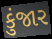
કુંજાર